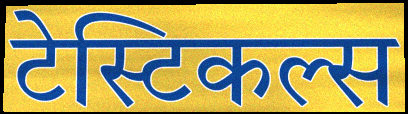
टेस्टिकल्स